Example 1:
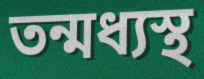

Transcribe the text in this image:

তন্মধ্যস্থ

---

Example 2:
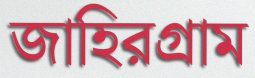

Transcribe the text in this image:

জাহিরগ্রাম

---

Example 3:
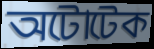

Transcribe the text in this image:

অটোটেক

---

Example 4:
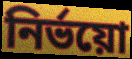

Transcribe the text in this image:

নির্ভয়ো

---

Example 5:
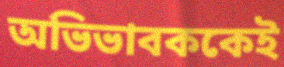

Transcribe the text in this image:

অভিভাবককেই